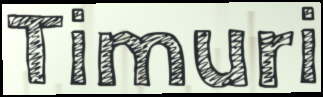
Timuri